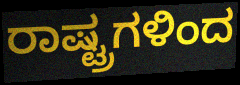
ರಾಷ್ಟ್ರಗಳಿಂದ